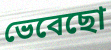
ভেবেছো